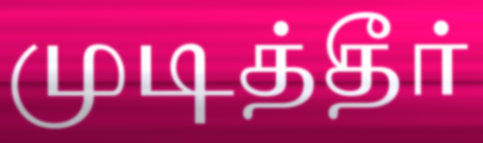
முடித்தீர்